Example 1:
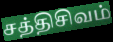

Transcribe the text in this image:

சத்திசிவம்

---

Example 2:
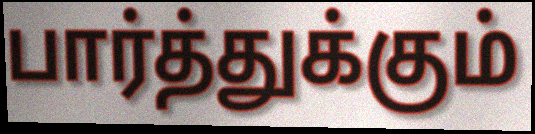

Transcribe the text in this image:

பார்த்துக்கும்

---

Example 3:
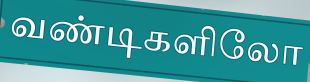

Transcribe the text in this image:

வண்டிகளிலோ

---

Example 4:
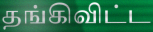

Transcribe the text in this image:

தங்கிவிட்ட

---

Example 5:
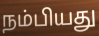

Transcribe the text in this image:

நம்பியது